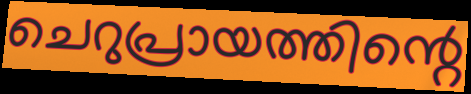
ചെറുപ്രായത്തിന്റെ